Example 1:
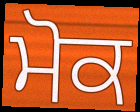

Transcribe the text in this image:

ਮੋਕ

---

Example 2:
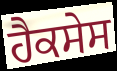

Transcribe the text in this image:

ਹੈਕਸੇਸ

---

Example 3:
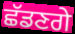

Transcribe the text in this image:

ਛੱਡਣਗੇ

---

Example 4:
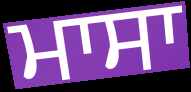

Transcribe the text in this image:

ਮਾਸਾ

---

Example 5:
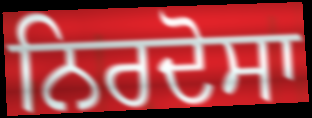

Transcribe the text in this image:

ਨਿਰਦੋਸਾ